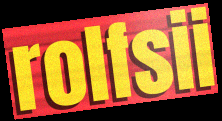
rolfsii